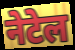
नेटेल